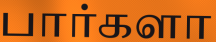
பார்களா